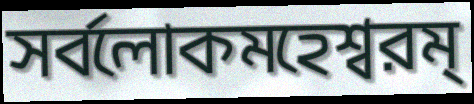
সর্বলোকমহেশ্বরম্